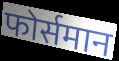
फोर्समान